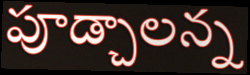
పూడ్చాలన్న